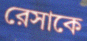
রেসাকে